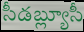
సీడబ్ల్యూసీ